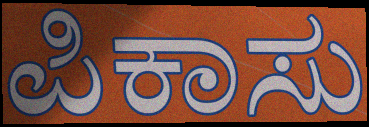
ಪಿಕಾಸು